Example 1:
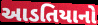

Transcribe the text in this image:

આડતિયાનો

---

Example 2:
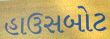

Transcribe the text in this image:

હાઉસબોટ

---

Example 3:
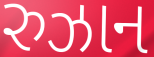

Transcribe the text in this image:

રુઝાન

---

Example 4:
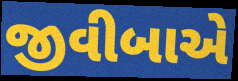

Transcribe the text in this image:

જીવીબાએ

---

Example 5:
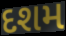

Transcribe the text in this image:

દશમ